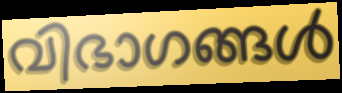
വിഭാഗങ്ങൾ